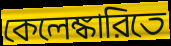
কেলেঙ্কারিতে